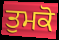
ਤੁਮਕੋ